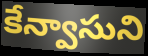
కేన్వాసుని